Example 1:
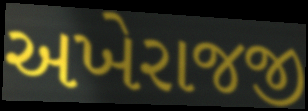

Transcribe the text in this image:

અખેરાજજી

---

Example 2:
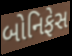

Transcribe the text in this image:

બોનિફેસ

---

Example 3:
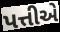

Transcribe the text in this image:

પત્તીએ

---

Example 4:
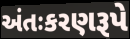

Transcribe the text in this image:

અંતઃકરણરૂપે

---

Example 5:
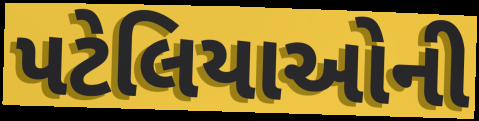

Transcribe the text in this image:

પટેલિયાઓની